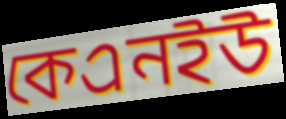
কেএনইউ